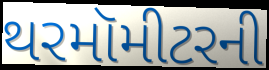
થરમૉમીટરની